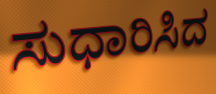
ಸುಧಾರಿಸಿದ